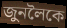
জুনলৈকে